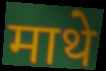
माथे